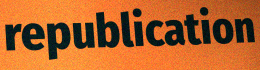
republication